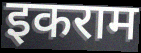
इकराम